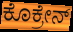
ಕೊಕ್ರೇನ್